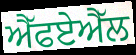
ਐੱਫਏਐੱਲ